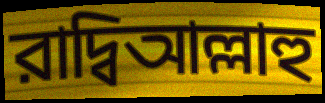
রাদ্বিআল্লাহু